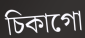
চিকাগো